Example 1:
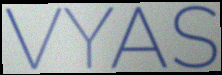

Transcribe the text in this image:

VYAS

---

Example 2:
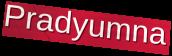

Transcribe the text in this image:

Pradyumna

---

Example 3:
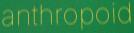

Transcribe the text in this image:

anthropoid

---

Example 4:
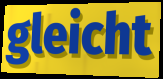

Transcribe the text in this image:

gleicht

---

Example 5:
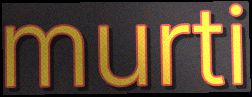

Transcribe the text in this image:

murti